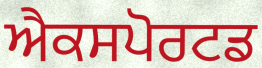
ਐਕਸਪੋਰਟਡ